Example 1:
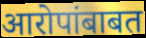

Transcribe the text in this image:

आरोपांबाबत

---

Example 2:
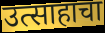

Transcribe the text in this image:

उत्साहाचा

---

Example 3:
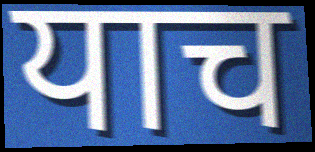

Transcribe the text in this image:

याच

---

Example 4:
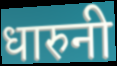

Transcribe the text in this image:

धारुनी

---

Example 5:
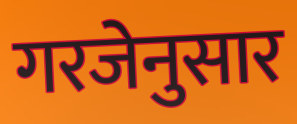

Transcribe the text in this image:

गरजेनुसार